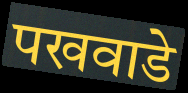
पखवाडे